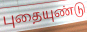
புதையுண்டு